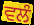
ਵਲੰ